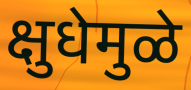
क्षुधेमुळे